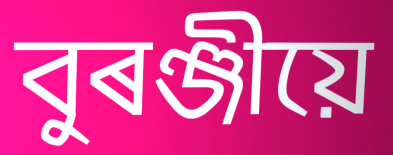
বুৰঞ্জীয়ে